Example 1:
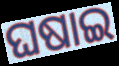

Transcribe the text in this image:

ଘଷାଇ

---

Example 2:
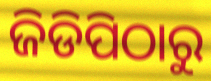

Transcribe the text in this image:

ଜିଡିପିଠାରୁ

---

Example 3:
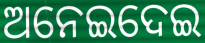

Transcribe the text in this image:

ଅନେଇଦେଇ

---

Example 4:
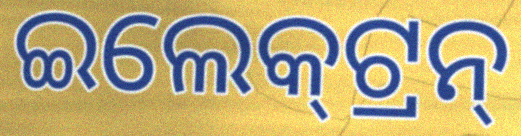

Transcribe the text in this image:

ଇଲେକ୍‌ଟ୍ରନ୍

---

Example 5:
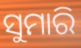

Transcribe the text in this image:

ସୁମାରି